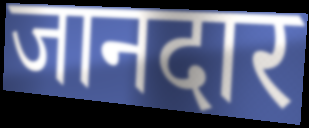
जानदार